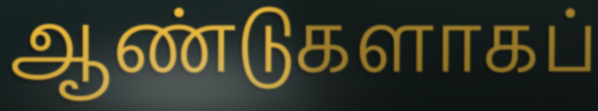
ஆண்டுகளாகப்